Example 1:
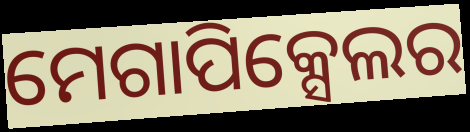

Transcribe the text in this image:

ମେଗାପିକ୍ସେଲର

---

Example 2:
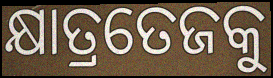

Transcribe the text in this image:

କ୍ଷାତ୍ରତେଜକୁ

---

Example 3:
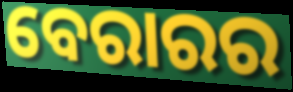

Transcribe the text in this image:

ବେରାରର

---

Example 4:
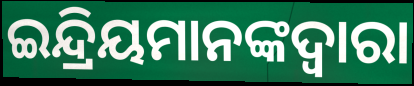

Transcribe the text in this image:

ଇନ୍ଦ୍ରିୟମାନଙ୍କଦ୍ୱାରା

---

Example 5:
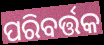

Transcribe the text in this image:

ପରିବର୍ତ୍ତକ